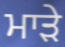
ਮਾੜੇ